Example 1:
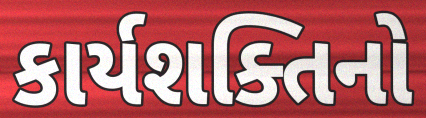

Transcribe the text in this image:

કાર્યશક્તિનો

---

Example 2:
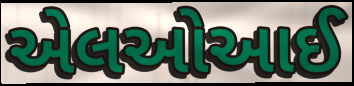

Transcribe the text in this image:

એલઓઆઈ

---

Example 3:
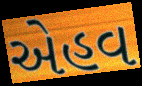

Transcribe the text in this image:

એહવ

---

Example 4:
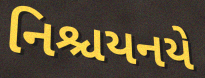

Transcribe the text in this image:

નિશ્ચયનયે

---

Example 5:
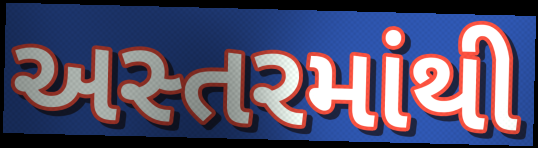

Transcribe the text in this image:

અસ્તરમાંથી